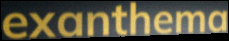
exanthema